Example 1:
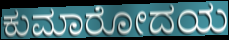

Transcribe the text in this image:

ಕುಮಾರೋದಯ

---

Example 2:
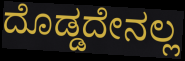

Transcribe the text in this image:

ದೊಡ್ಡದೇನಲ್ಲ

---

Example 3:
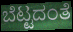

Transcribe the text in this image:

ಬೆಟ್ಟದಂತೆ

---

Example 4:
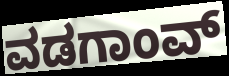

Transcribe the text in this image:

ವಡಗಾಂವ್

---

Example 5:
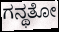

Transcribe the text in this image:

ಗನ್ಥತೋ